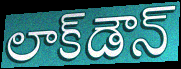
లాక్‌డౌన్